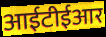
आईटीईआर